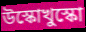
উস্কোখুস্কো